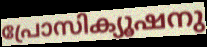
പ്രോസിക്യൂഷനു